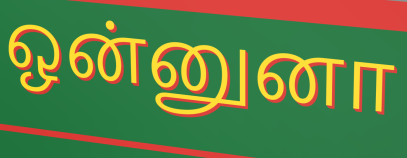
ஒன்னுனா